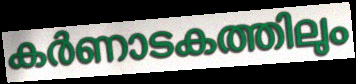
കർണാടകത്തിലും